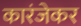
कारंजेकर